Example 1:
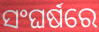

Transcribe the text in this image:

ସଂଘର୍ଷରେ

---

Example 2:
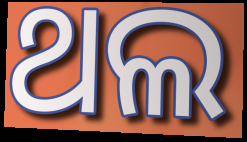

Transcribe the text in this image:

ଥଲ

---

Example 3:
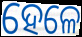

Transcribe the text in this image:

ହେଳେ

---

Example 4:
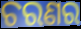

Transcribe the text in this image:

ଚରଣର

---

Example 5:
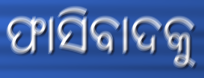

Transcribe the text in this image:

ଫାସିବାଦକୁ